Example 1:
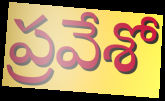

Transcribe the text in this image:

ప్రవేశో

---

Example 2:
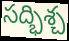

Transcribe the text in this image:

సద్భిశ్చ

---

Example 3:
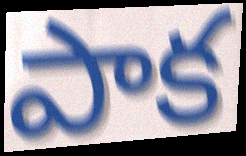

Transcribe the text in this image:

పాక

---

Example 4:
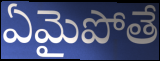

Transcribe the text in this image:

ఏమైపోతే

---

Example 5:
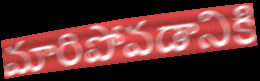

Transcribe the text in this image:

మారిపోవడానికి